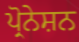
ਪ੍ਰੋਨੇਸ਼ਨ